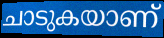
ചാടുകയാണ്